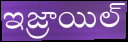
ఇజ్రాయిల్